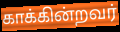
காக்கின்றவர்